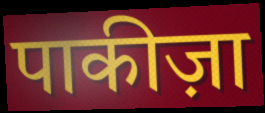
पाकीज़ा